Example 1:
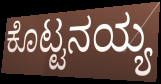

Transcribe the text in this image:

ಕೊಟ್ಟನಯ್ಯ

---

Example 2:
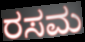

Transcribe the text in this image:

ರಸಮ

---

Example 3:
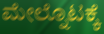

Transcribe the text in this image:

ಮೇಲ್ನೊಟಕ್ಕೆ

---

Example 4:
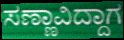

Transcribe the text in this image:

ಸಣ್ಣಾವಿದ್ದಾಗ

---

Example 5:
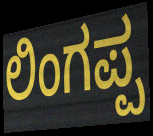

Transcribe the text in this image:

ಲಿಂಗಪ್ಪ